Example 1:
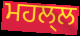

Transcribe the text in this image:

ਮਹਲ੍ਲ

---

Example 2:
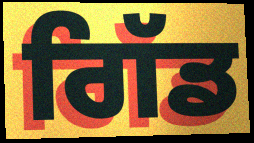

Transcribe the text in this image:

ਗਿੱਡ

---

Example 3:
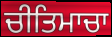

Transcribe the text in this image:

ਚੀਤਿਮਾਚਾ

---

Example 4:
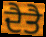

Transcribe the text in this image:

ਦੈਤੈ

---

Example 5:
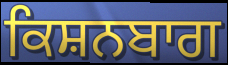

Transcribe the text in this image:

ਕਿਸ਼ਨਬਾਗ